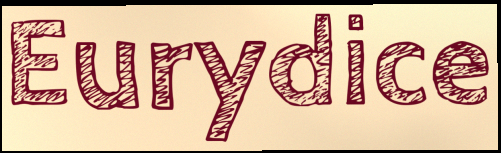
Eurydice